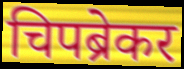
चिपब्रेकर